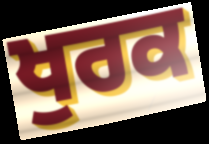
ਖੁਰਕ